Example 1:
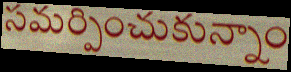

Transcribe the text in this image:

సమర్పించుకున్నాం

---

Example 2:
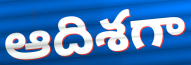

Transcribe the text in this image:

ఆదిశగా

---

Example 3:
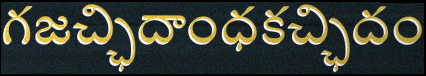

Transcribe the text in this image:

గజచ్ఛిదాంధకచ్ఛిదం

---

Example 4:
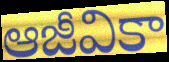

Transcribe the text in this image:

ఆజీవికా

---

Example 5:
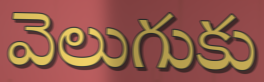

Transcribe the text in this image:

వెలుగుకు